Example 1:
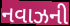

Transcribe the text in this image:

નવાઝની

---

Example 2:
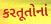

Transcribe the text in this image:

કરતૂતોનાં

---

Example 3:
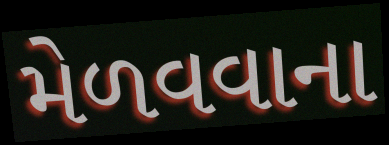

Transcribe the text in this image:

મેળવવાના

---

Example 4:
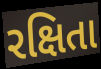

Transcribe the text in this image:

રક્ષિતા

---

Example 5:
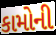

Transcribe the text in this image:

કામોની